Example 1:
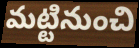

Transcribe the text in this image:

మట్టినుంచి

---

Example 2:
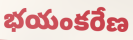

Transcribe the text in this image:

భయంకరేణ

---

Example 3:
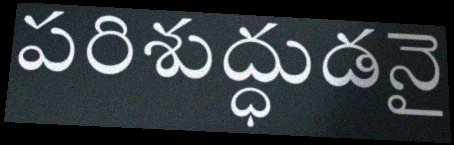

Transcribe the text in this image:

పరిశుద్ధుడనై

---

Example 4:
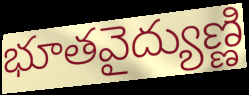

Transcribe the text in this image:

భూతవైద్యుణ్ణి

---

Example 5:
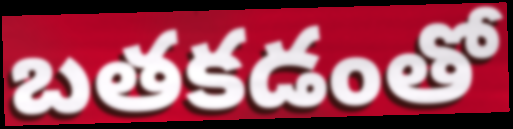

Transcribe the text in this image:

బతకడంతో